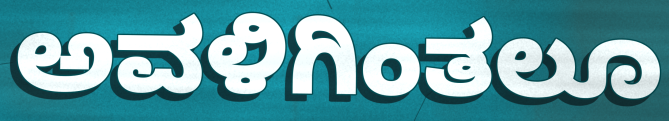
ಅವಳಿಗಿಂತಲೂ